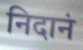
निदानं